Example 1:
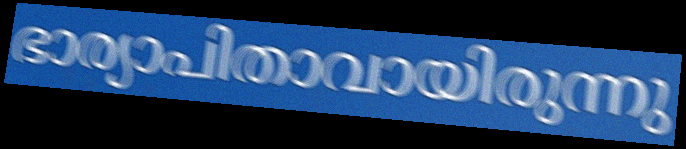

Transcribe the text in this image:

ഭാര്യാപിതാവായിരുന്നു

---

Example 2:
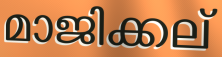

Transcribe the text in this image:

മാജിക്കല്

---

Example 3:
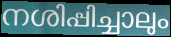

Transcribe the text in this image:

നശിപ്പിച്ചാലും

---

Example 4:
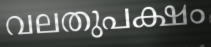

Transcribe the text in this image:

വലതുപക്ഷം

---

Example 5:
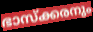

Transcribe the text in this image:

ഭാസ്ക്കരനും